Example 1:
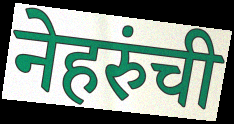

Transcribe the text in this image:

नेहरुंची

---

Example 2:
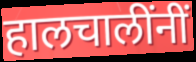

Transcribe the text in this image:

हालचालींनीं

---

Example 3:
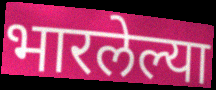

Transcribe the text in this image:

भारलेल्या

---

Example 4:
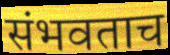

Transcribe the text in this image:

संभवताच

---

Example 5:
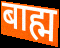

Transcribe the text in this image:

बाह्म